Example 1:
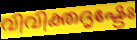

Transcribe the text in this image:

വിവിക്തദൃഷ്ടേഃ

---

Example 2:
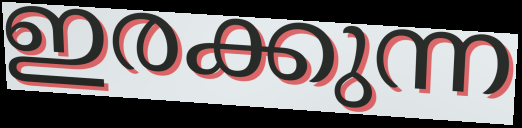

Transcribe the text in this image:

ഇരക്കുന്ന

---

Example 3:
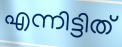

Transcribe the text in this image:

എന്നിട്ടിത്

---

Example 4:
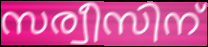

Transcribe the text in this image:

സര്വീസിന്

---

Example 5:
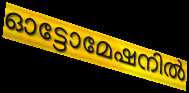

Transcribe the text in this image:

ഓട്ടോമേഷനിൽ